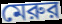
মেরুর